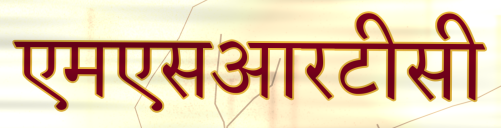
एमएसआरटीसी